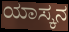
ಯಾಸ್ಕನ